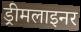
ड्रीमलाइनर